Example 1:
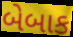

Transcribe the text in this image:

બેબાક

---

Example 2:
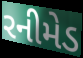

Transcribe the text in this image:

રનીમેડ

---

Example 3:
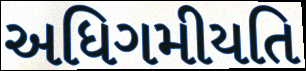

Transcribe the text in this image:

અધિગમીયતિ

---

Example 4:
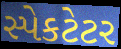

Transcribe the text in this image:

સ્પેકટેટર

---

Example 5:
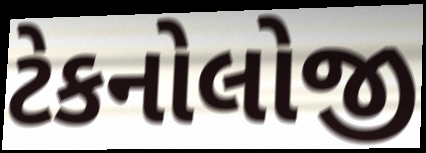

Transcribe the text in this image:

ટેકનોલોજી